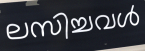
ലസിച്ചവൾ